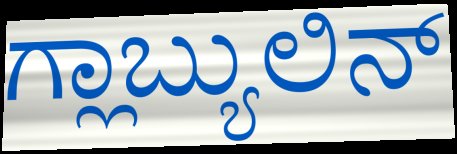
ಗ್ಲಾಬ್ಯುಲಿನ್